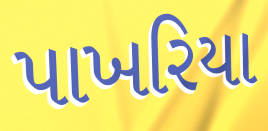
પાખરિયા